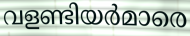
വളണ്ടിയർമാരെ